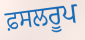
ਫ਼ਸਲਰੂਪ